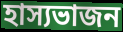
হাস্যভাজন